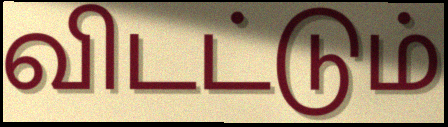
விடட்டும்